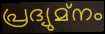
പ്രദ്യുമ്നം